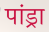
पांड्रा